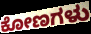
ಕೋಣಗಳು